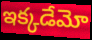
ఇక్కడేమో